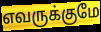
எவருக்குமே